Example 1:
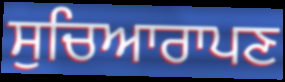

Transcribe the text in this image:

ਸੁਚਿਆਰਾਪਣ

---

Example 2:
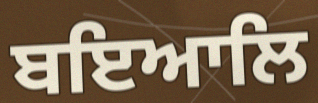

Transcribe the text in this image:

ਬਇਆਲਿ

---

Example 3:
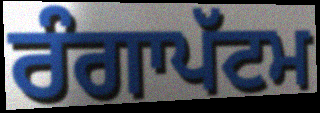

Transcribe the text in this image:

ਰੰਗਾਪੱਟਮ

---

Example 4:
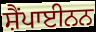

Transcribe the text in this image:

ਸ਼ੈਂਪਾਈਨਨ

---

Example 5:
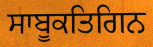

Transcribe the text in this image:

ਸਾਬੂਕਤਿਗਿਨ